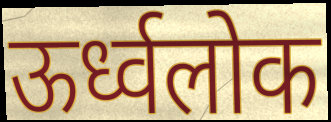
ऊर्ध्वलोक